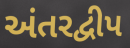
અંતરદ્વીપ